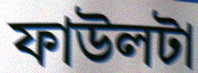
ফাউলটা